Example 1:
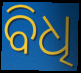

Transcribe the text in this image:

ବିଧି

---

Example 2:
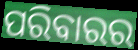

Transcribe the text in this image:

ପରିବାରର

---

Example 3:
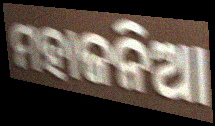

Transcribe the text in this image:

ମହାଜନିଆ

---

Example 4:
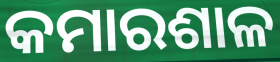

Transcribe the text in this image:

କମାରଶାଳ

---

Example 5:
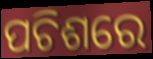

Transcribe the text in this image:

ପଚିଶରେ